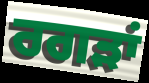
ਰਗੜਾਂ